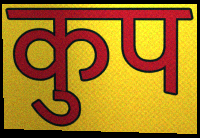
कुप